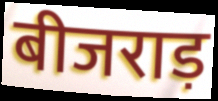
बीजराड़